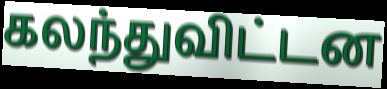
கலந்துவிட்டன